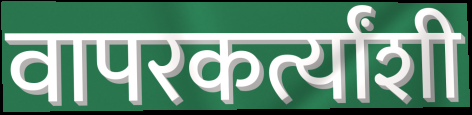
वापरकर्त्यांशी